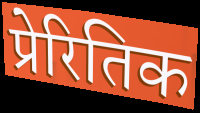
प्रेरितिक